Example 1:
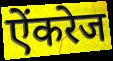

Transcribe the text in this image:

ऐंकरेज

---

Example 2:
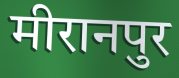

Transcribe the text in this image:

मीरानपुर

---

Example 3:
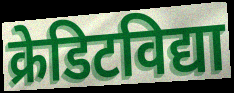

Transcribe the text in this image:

क्रेडिटविद्या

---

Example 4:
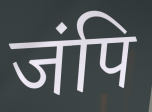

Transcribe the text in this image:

जंपि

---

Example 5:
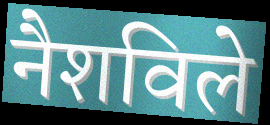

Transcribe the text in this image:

नैशविले